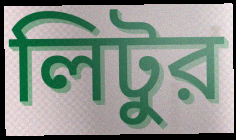
লিটুর